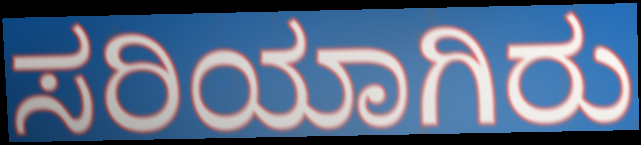
ಸರಿಯಾಗಿರು